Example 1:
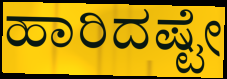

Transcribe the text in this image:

ಹಾರಿದಷ್ಟೇ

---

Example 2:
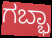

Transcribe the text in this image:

ಗಬ್ಭಾ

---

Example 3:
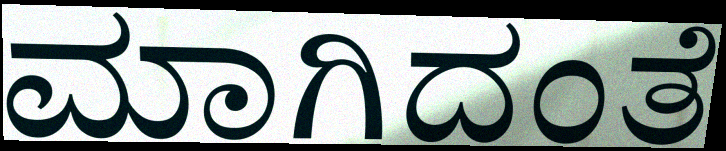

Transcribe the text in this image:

ಮಾಗಿದಂತೆ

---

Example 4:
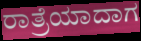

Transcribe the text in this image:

ರಾತ್ರೆಯಾದಾಗ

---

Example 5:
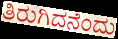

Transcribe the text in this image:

ತಿರುಗಿದನೆಂದು